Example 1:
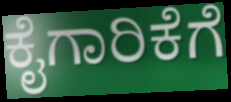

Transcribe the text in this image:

ಕೈಗಾರಿಕೆಗೆ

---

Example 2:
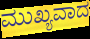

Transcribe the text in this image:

ಮುಖ್ಯವಾದ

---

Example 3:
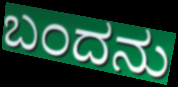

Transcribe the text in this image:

ಬಂದನು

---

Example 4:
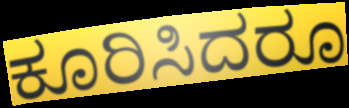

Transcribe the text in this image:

ಕೂರಿಸಿದರೂ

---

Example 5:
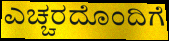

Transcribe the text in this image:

ಎಚ್ಚರದೊಂದಿಗೆ